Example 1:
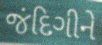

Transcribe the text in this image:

જંદિગીને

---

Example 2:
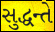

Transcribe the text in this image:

સુદ્ધન્તે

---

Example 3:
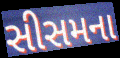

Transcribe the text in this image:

સીસમના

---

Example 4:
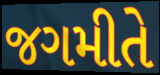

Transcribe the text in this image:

જગમીતે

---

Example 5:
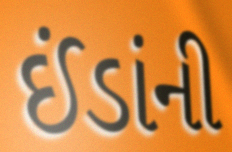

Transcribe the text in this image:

ઈંડાંની